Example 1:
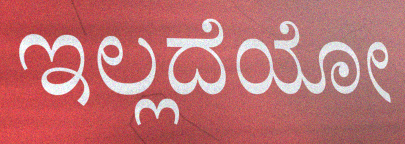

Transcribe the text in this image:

ಇಲ್ಲದೆಯೋ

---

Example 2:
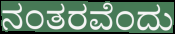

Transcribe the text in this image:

ನಂತರವೆಂದು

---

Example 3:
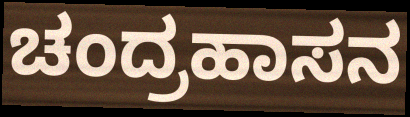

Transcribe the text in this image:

ಚಂದ್ರಹಾಸನ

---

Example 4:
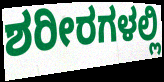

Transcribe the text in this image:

ಶರೀರಗಳಲ್ಲಿ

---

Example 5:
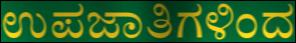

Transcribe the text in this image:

ಉಪಜಾತಿಗಳಿಂದ